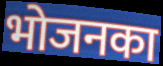
भोजनका